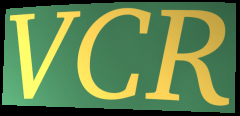
VCR